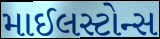
માઈલસ્ટોન્સ